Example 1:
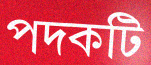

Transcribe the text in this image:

পদকটি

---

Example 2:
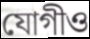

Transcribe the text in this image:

যোগীও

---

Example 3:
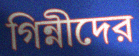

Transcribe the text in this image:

গিন্নীদের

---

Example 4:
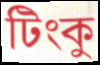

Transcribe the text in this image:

টিংকু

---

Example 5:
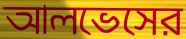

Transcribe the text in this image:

আলভেসের